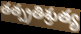
తత్ప్రతిశ్రుత్య